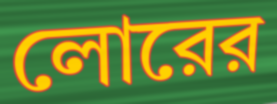
লোরের